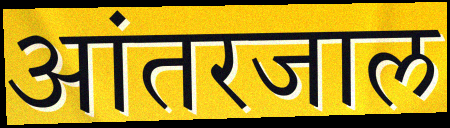
आंतरजाल